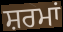
ਸ਼ਰਮਾਂ